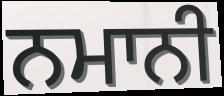
ਨਮਾਨੀ